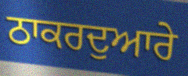
ਠਾਕਰਦੁਆਰੇ